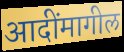
आदींमागील